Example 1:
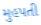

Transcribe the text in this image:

મુહપતી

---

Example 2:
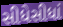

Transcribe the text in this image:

સીધેસીધાં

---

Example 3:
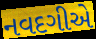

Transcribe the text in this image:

નવદગીએ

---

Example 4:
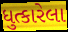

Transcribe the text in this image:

ધુત્કારેલા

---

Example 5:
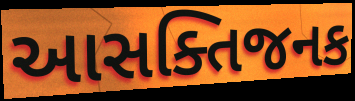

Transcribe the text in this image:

આસક્તિજનક